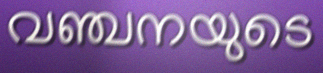
വഞ്ചനയുടെ